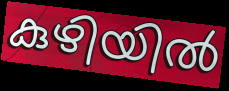
കുഴിയിൽ